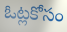
ఓట్లకోసం